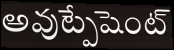
అవుట్పేషెంట్